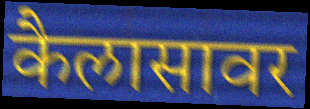
कैलासावर